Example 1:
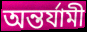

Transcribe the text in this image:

অন্তর্যামী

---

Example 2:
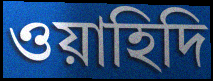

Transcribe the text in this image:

ওয়াহিদি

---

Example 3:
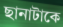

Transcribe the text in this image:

ছানাটাকে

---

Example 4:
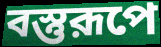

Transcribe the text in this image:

বস্তুরূপে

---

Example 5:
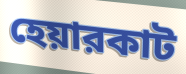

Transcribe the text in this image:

হেয়ারকাট